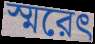
স্মরেৎ